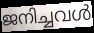
ജനിച്ചവൾ